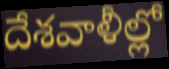
దేశవాళీల్లో